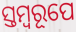
ସ୍ତମ୍ବରୂପେ